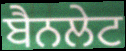
ਬੈਨਲੇਟ